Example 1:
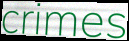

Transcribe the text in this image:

crimes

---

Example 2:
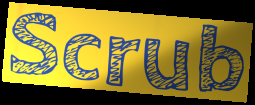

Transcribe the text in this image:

Scrub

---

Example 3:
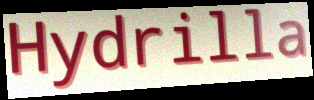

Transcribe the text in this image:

Hydrilla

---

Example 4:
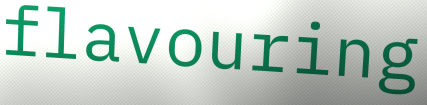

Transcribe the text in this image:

flavouring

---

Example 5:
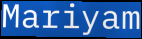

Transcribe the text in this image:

Mariyam